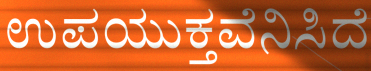
ಉಪಯುಕ್ತವೆನಿಸಿದೆ